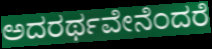
ಅದರರ್ಥವೇನೆಂದರೆ